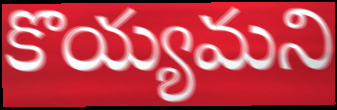
కొయ్యమని